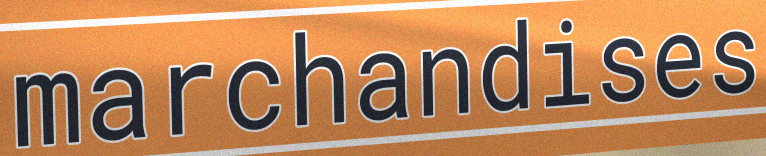
marchandises